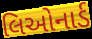
લિઓનાર્ડ